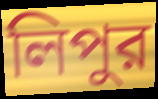
লিপুর